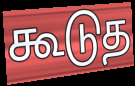
கூடுத